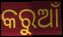
କରୁଆଁ